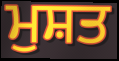
ਮੁਸ਼ਤ